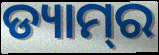
ଡ୍ୟାମ୍‍ର